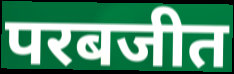
परबजीत